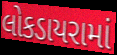
લોકડાયરામાં